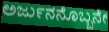
ಅರ್ಜುನನೊಬ್ಬನೇ